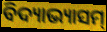
ବିଦ୍ୟାଭ୍ୟାସମ୍